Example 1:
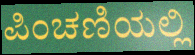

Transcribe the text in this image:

ಪಿಂಚಣಿಯಲ್ಲಿ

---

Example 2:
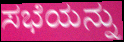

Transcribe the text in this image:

ಸಭೆಯನ್ನು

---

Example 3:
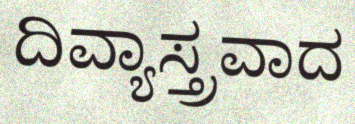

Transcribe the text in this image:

ದಿವ್ಯಾಸ್ತ್ರವಾದ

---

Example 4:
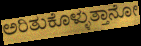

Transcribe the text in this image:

ಅರಿತುಕೊಳ್ಳುತ್ತಾನೋ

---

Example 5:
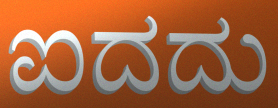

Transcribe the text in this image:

ಐದದು